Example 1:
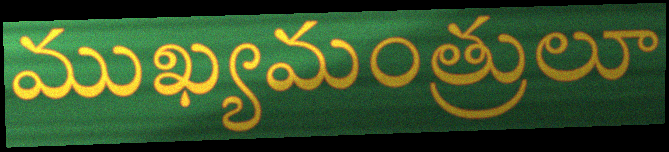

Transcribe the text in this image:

ముఖ్యమంత్రులూ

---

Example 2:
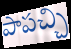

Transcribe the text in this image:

పాపచ్చి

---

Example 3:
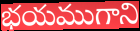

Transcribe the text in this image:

భయముగాని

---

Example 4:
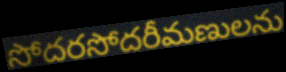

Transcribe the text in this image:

సోదరసోదరీమణులను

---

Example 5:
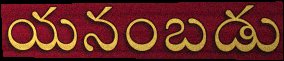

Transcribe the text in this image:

యనంబడు